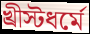
খ্রীস্টধর্মে